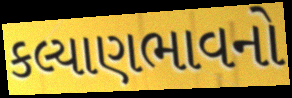
કલ્યાણભાવનો